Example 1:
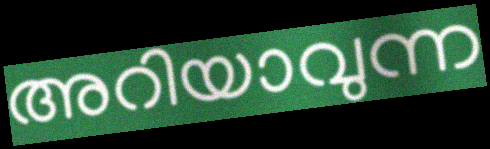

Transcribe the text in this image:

അറിയാവുന്ന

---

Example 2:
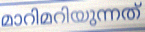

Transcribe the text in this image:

മാറിമറിയുന്നത്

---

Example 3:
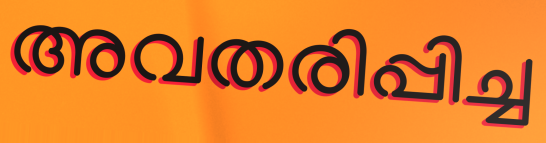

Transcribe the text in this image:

അവതരിപ്പിച്ച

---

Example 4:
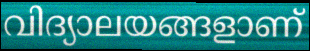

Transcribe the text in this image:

വിദ്യാലയങ്ങളാണ്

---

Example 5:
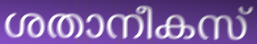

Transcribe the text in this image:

ശതാനീകസ്